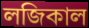
লজিকাল